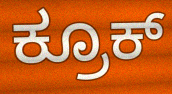
ಕ್ರೂಕ್